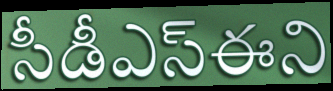
సీడీఎస్ఈని